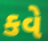
કવે